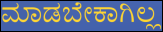
ಮಾಡಬೇಕಾಗಿಲ್ಲ